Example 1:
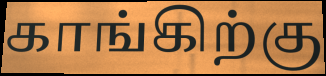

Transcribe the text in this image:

காங்கிற்கு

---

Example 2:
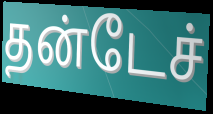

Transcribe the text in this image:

தன்டேச்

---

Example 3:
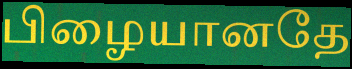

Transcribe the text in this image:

பிழையானதே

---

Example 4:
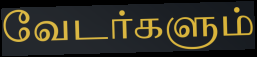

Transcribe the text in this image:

வேடர்களும்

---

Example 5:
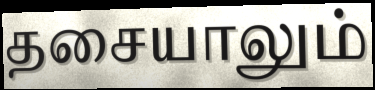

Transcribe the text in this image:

தசையாலும்